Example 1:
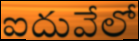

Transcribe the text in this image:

ఐదువేలో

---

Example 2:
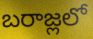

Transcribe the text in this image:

బరాజ్లలో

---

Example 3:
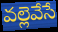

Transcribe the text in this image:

వల్లెవేసే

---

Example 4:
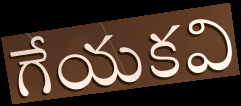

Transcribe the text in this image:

గేయకవి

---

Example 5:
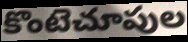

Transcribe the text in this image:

కొంటెచూపుల